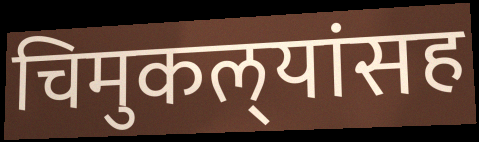
चिमुकल्यांसह